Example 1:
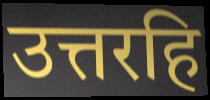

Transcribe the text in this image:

उत्तरहि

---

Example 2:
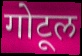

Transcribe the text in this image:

गोटूल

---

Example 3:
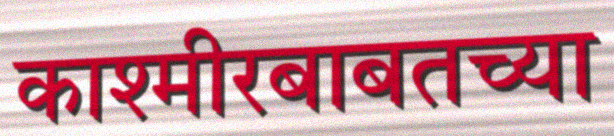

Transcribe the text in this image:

काश्मीरबाबतच्या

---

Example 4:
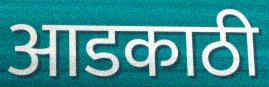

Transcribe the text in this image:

आडकाठी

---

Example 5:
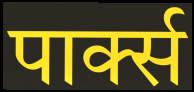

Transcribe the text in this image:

पार्क्‍स